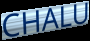
CHALU